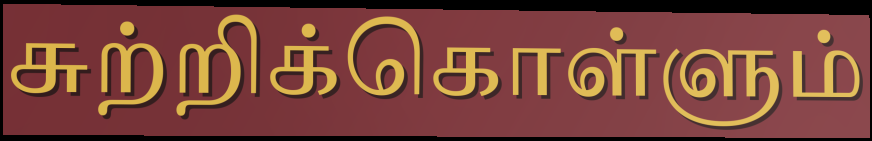
சுற்றிக்கொள்ளும்